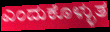
ಎಂದುಕೊಳ್ಳುತ